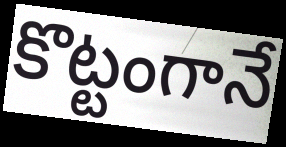
కొట్టంగానే